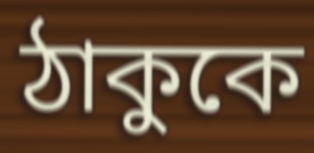
ঠাকুকে